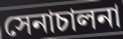
সেনাচালনা